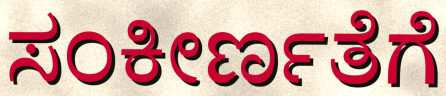
ಸಂಕೀರ್ಣತೆಗೆ